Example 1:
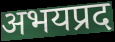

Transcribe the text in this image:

अभयप्रद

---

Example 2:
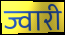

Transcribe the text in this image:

ज्वारी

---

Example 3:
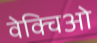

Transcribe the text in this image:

वेक्चिओ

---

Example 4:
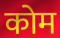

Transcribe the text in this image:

कोम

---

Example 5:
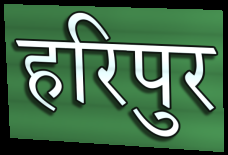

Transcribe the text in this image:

हरिपुर